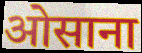
ओसाना